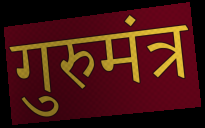
गुरुमंत्र